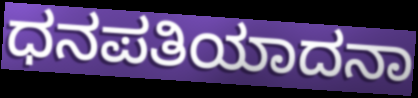
ಧನಪತಿಯಾದನಾ